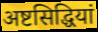
अष्टसिद्धियां